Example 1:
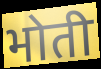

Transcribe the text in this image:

भोती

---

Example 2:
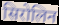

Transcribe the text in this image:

सिरोलिन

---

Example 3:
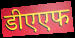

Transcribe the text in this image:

डीएएफ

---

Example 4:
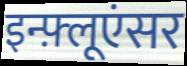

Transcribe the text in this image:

इन्फ़्लूएंसर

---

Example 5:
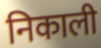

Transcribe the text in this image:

निकाली